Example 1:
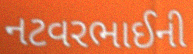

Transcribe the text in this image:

નટવરભાઈની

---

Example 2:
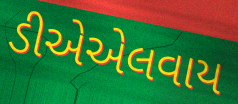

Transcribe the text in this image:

ડીએએલવાય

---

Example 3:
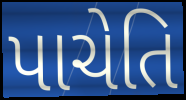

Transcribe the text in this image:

પાચેતિ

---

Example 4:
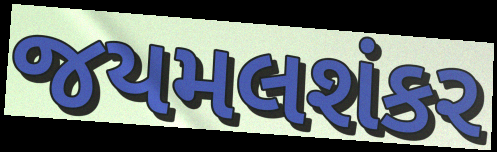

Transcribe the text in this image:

જયમલશંકર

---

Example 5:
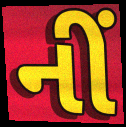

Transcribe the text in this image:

નીં